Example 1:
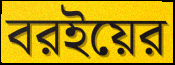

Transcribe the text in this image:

বরইয়ের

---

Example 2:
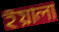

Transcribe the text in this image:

ইয়ালা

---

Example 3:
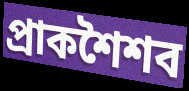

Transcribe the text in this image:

প্রাকশৈশব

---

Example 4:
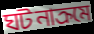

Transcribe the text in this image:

ঘটনাক্রমে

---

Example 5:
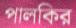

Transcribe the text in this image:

পালকির